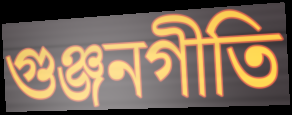
গুঞ্জনগীতি